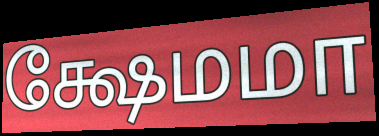
க்ஷேமமா